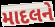
માદલને